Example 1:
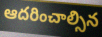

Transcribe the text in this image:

ఆదరించాల్సిన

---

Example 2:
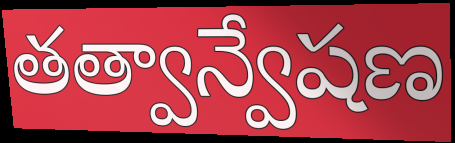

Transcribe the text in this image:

తత్వాన్వేషణ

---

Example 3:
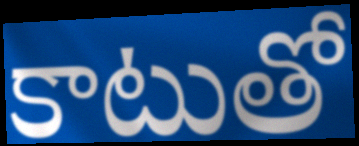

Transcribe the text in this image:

కాటుతో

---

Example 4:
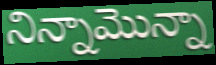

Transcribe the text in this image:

నిన్నామొన్నా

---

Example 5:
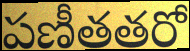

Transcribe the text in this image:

పణీతతరో